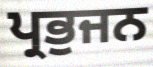
ਪ੍ਰਭੁਜਨ